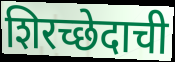
शिरच्छेदाची